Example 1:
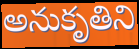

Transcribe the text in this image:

అనుకృతిని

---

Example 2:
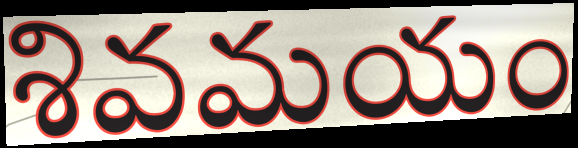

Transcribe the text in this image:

శివమయం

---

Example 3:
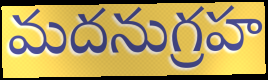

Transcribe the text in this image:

మదనుగ్రహ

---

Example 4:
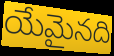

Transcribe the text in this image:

యేమైనది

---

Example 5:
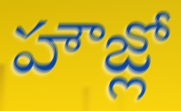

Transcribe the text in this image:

హౌజ్లో